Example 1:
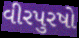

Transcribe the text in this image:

વીરપુરષો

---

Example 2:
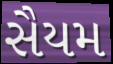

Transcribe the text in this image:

સૈયમ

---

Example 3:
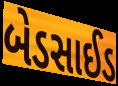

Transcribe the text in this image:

બેડસાઈડ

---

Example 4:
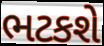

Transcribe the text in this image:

ભટકશે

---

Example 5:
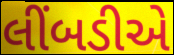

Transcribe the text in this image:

લીંબડીએ